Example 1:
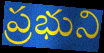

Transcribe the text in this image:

ప్రభుని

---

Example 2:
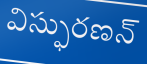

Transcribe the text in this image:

విస్ఫురణన్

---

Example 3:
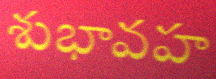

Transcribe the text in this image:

శుభావహ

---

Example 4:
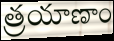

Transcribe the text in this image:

త్రయాణాం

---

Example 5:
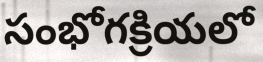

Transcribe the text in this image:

సంభోగక్రియలో